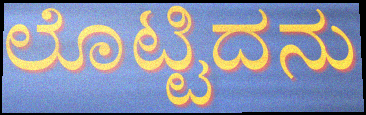
ಲೊಟ್ಟಿದನು